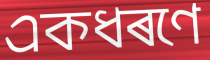
একধৰণে